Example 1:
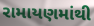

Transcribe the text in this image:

રામાયણમાંથી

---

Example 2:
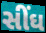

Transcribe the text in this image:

સીંઘ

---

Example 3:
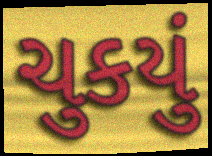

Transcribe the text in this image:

ચુકયું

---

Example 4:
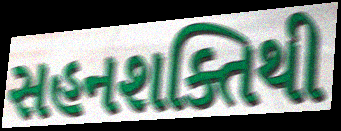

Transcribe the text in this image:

સહનશક્તિથી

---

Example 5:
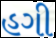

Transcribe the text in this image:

હગી